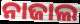
ନାଜାଲ